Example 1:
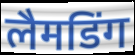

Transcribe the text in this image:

लैमडिंग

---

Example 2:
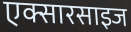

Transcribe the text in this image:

एक्सारसाइज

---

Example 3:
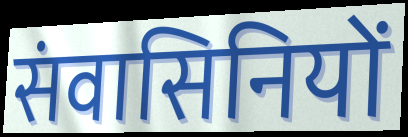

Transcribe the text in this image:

संवासिनियों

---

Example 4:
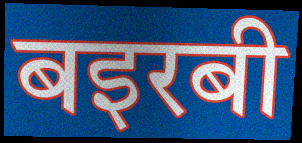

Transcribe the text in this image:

बइरबी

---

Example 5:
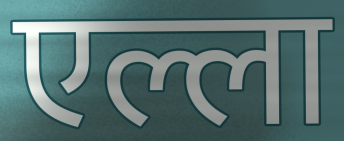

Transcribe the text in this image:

एल्ला